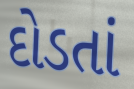
દોડતાં